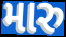
મારુ